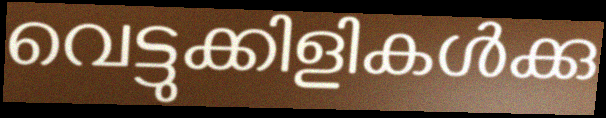
വെട്ടുക്കിളികൾക്കു